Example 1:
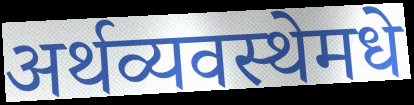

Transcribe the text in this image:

अर्थव्यवस्थेमधे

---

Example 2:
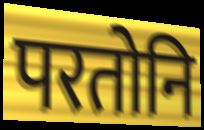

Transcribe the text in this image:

परतोनि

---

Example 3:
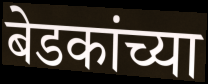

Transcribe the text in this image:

बेडकांच्या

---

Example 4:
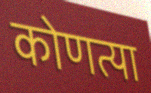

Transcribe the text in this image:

कोणत्या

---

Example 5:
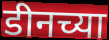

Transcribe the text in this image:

डीनच्या